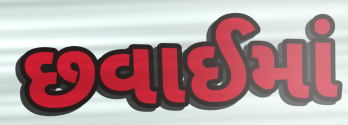
છવાઈમાં